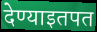
देण्याइतपत